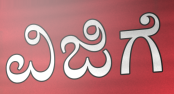
ವಿಜಿಗೆ